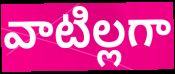
వాటిల్లగా